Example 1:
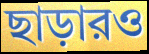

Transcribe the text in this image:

ছাড়ারও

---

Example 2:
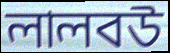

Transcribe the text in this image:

লালবউ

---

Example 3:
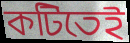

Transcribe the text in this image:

কটিতেই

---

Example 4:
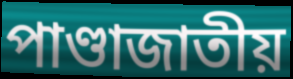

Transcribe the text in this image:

পাণ্ডাজাতীয়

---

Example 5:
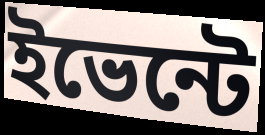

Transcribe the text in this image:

ইভেন্টে